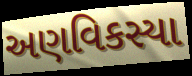
અણવિકસ્યા